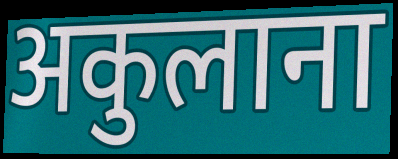
अकुलाना